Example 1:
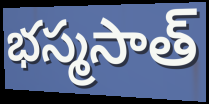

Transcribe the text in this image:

భస్మసాత్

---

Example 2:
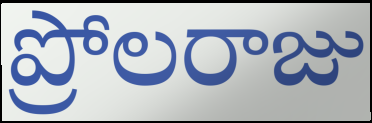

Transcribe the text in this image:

ప్రోలరాజు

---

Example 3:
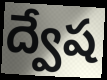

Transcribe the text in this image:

ద్వేష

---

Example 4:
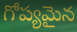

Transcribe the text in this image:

గోప్యమైన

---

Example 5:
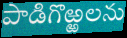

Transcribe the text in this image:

పాడిగొఱ్ఱలను